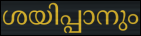
ശയിപ്പാനും